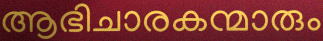
ആഭിചാരകന്മാരും